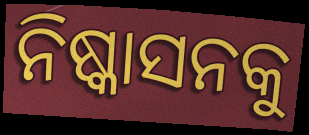
ନିଷ୍କାସନକୁ